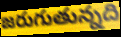
జరుగుతున్నది